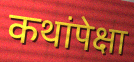
कथांपेक्षा